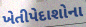
ખેતીપેદાશોના